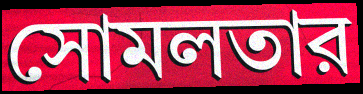
সোমলতার